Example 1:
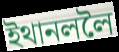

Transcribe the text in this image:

ইথানললৈ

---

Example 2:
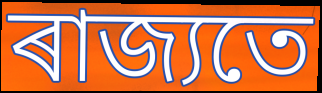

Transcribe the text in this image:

ৰাজ্যতে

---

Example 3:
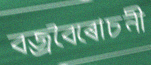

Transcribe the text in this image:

বজ্ৰবৈৰোচনী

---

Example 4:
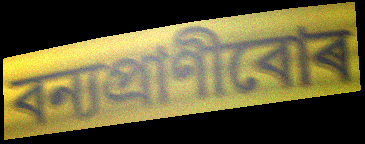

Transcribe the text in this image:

বন্যপ্ৰাণীবোৰ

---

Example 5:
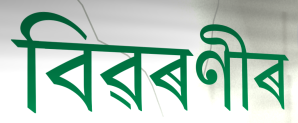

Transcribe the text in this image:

বিৱৰণীৰ